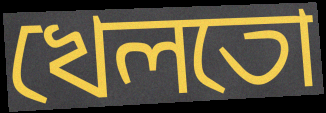
খেলতো